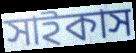
সাইকাস